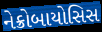
નેક્રોબાયોસિસ